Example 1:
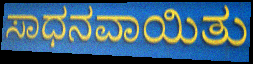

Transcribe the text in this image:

ಸಾಧನವಾಯಿತು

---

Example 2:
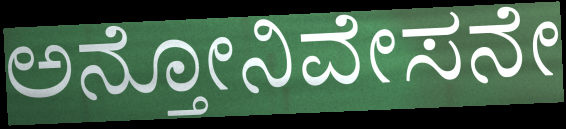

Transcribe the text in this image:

ಅನ್ತೋನಿವೇಸನೇ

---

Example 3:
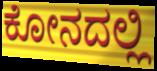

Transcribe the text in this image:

ಕೋನದಲ್ಲಿ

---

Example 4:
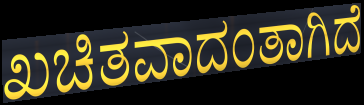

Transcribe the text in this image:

ಖಚಿತವಾದಂತಾಗಿದೆ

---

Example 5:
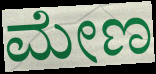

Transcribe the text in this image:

ಮೇಣ